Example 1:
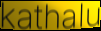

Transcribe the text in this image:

kathalu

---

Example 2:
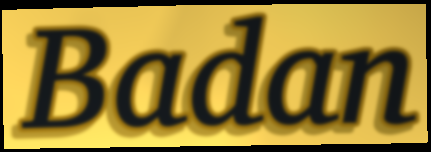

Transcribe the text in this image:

Badan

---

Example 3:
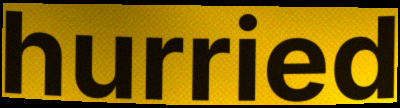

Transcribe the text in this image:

hurried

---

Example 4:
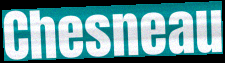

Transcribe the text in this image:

Chesneau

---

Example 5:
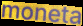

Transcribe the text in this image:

moneta